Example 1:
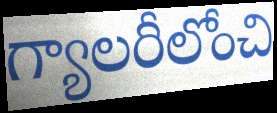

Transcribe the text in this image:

గ్యాలరీలోంచి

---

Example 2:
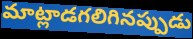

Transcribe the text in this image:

మాట్లాడగలిగినప్పుడు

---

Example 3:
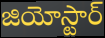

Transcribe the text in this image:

జియోస్టార్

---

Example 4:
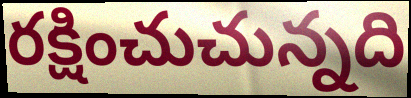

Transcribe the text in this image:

రక్షించుచున్నది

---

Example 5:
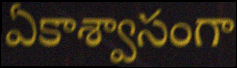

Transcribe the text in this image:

ఏకాశ్వాసంగా